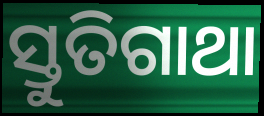
ସ୍ତୁତିଗାଥା